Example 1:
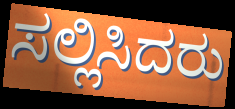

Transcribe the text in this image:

ಸಲ್ಲಿಸಿದರು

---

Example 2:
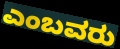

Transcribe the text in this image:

ಎಂಬವರು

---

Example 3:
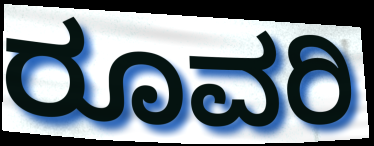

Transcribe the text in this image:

ರೂವರಿ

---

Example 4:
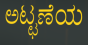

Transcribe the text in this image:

ಅಟ್ಟಣೆಯ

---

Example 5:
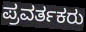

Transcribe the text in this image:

ಪ್ರವರ್ತಕರು